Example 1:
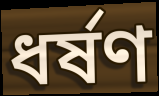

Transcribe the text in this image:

ধৰ্ষণ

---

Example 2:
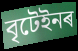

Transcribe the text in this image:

বৃটেইনৰ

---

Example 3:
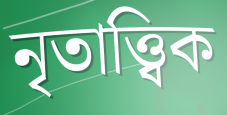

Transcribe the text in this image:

নৃতাত্ত্বিক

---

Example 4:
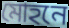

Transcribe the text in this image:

মোহনে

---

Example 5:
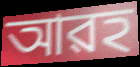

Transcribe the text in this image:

আৱহ